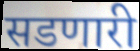
सडणारी